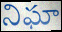
నిఘా